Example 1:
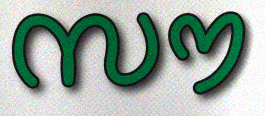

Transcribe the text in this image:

സൗ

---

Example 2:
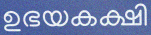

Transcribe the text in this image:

ഉഭയകക്ഷി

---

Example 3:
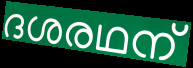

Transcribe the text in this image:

ദശരഥന്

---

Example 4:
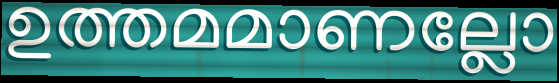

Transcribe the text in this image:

ഉത്തമമാണല്ലോ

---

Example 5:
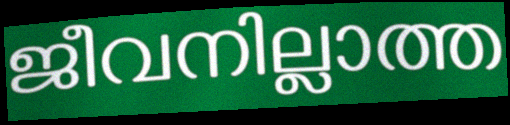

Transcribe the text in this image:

ജീവനില്ലാത്ത